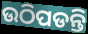
ଉଠିପଡନ୍ତି